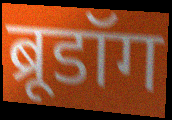
ब्रूडॉग